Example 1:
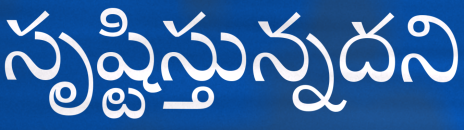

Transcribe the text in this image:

సృష్టిస్తున్నదని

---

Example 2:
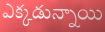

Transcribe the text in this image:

ఎక్కడున్నాయి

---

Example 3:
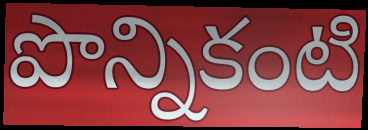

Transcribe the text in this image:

పొన్నికంటి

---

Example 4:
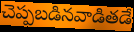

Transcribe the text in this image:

చెప్పబడినవాడితడే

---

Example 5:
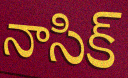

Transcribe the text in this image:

నాసిక్